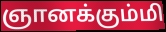
ஞானக்கும்மி